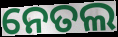
ନେତଲ